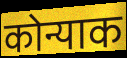
कोन्याक